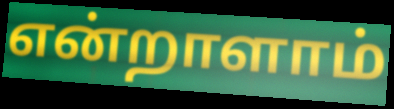
என்றாளாம்